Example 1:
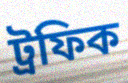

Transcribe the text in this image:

ট্রফিক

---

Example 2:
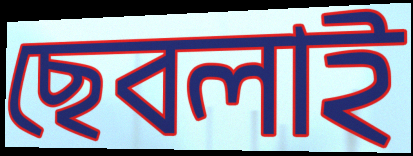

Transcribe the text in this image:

ছেবলাই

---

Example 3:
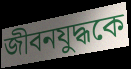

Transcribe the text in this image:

জীবনযুদ্ধকে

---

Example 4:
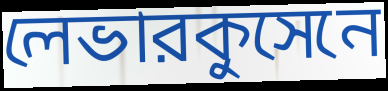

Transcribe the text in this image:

লেভারকুসেনে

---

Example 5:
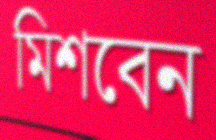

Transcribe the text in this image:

মিশবেন